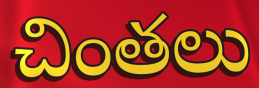
చింతలు